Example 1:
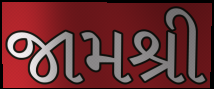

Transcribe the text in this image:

જામશ્રી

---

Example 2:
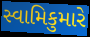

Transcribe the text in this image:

સ્વામિકુમારે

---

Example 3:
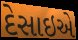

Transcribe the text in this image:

દેસાઇએ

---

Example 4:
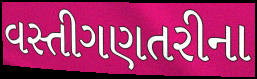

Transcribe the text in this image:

વસ્તીગણતરીના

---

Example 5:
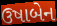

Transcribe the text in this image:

ઉષાબેન